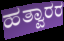
ಹತ್ವಾರರ